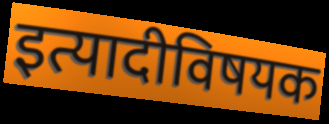
इत्यादीविषयक